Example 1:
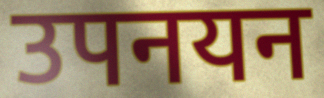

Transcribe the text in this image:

उपनयन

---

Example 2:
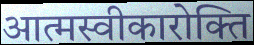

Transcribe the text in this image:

आत्मस्वीकारोक्ति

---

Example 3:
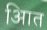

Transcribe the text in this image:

आित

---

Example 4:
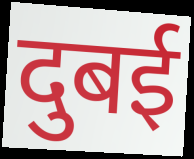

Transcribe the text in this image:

दुबई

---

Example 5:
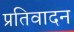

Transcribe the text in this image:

प्रतिवादन